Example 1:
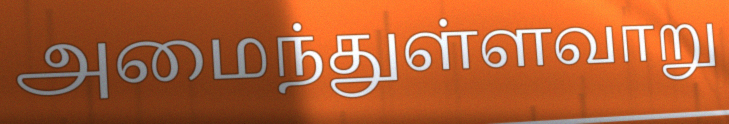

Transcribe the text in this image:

அமைந்துள்ளவாறு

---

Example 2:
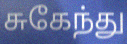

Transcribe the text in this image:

சுகேந்து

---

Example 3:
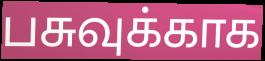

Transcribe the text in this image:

பசுவுக்காக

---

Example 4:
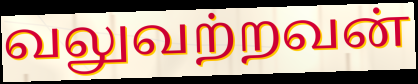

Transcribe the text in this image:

வலுவற்றவன்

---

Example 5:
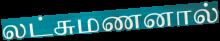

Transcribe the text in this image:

லட்சுமணனால்